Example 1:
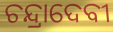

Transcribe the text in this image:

ଚନ୍ଦ୍ରାଦେବୀ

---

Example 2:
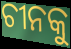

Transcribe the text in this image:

ଚୀନକୁ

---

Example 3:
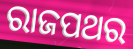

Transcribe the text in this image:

ରାଜପଥର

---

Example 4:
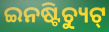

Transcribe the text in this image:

ଇନଷ୍ଟିଚ୍ୟୁଟ୍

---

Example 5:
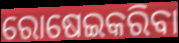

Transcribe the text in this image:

ରୋଷେଇକରିବା